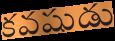
కవషుడు